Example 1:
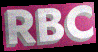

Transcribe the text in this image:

RBC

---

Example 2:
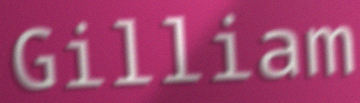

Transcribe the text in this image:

Gilliam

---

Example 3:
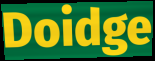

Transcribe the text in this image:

Doidge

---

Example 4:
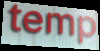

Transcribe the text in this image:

temp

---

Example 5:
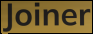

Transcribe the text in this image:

Joiner